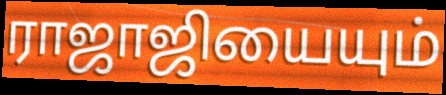
ராஜாஜியையும்